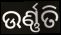
ଉର୍ଣ୍ଣତି